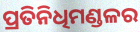
ପ୍ରତିନିଧିମଣ୍ଡଳର